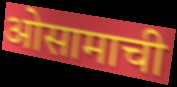
ओसामाची